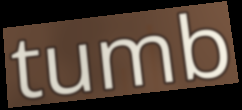
tumb